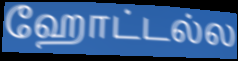
ஹோட்டல்ல